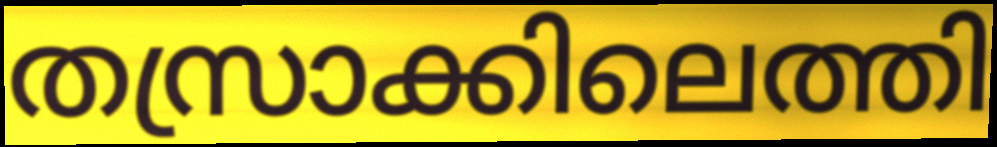
തസ്രാക്കിലെത്തി